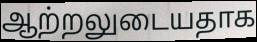
ஆற்றலுடையதாக